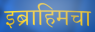
इब्राहिमचा